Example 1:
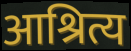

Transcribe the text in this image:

आश्रित्य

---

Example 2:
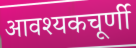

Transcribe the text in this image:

आवश्यकचूर्णी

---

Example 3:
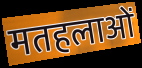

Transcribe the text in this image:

मतहलाओं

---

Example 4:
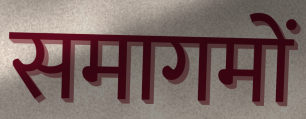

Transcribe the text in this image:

समागमों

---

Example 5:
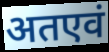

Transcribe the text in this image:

अतएवं